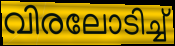
വിരലോടിച്ച്